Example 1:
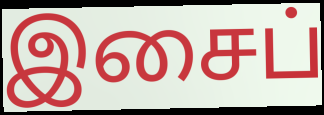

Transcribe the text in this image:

இசைப்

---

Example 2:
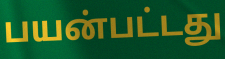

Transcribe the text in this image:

பயன்பட்டது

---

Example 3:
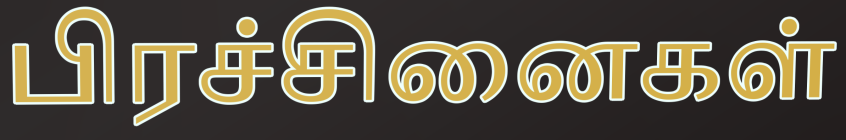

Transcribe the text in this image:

பிரச்சினைகள்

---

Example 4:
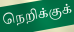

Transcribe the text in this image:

நெறிக்குக்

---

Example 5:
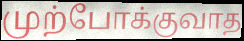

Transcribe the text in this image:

முற்போக்குவாத